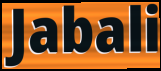
Jabali